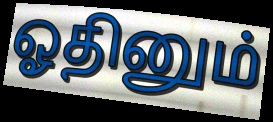
ஓதினும்